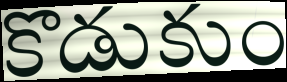
కొడుకుం